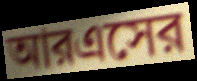
আরএসের